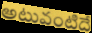
అటువంటిదే